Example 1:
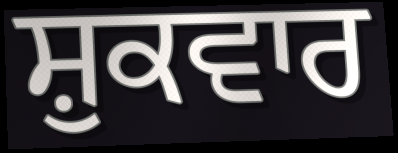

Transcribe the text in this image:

ਸ਼ੁਕਵਾਰ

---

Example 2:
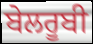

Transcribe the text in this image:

ਬੇਲਰੂਬੀ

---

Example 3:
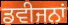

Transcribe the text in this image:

ਡਵੀਜਨਾਂ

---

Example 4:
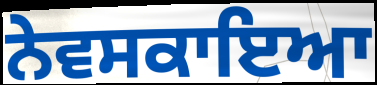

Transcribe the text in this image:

ਨੇਵਸਕਾਇਆ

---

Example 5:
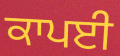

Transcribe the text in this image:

ਕਾਪਈ